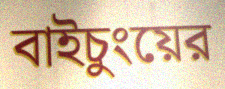
বাইচুংয়ের